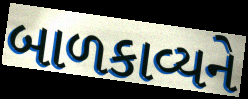
બાળકાવ્યને